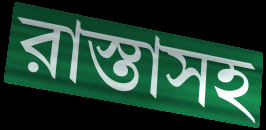
রাস্তাসহ